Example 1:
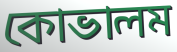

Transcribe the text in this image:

কোভালম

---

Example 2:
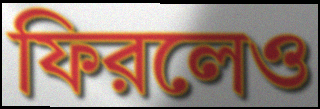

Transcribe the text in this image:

ফিরলেও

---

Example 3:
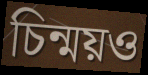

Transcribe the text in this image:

চিন্ময়ও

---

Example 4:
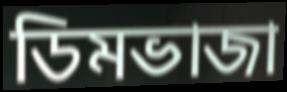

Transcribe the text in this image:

ডিমভাজা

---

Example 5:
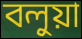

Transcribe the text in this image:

বলুয়া